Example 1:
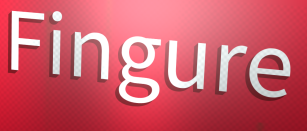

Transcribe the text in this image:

Fingure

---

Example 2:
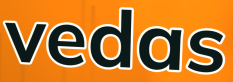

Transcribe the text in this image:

vedas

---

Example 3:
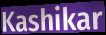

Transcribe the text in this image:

Kashikar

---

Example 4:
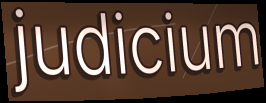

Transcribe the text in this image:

judicium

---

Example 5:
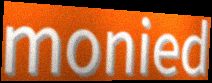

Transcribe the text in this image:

monied